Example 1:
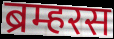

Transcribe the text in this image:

ब्रम्हरस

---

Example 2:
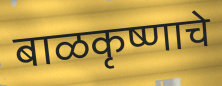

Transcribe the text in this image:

बाळकृष्णाचे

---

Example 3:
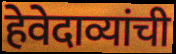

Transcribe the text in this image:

हेवेदाव्यांची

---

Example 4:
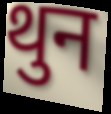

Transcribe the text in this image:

थुन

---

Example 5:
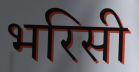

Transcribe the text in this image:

भरिसी